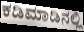
ಕಡಿಮಾಡಿನಲ್ಲಿ